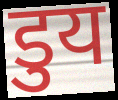
डुय